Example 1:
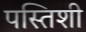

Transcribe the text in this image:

पस्तिशी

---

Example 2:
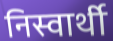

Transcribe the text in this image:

निस्वार्थी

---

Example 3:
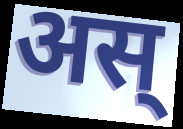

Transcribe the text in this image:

अस्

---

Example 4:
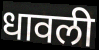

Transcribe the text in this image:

धावली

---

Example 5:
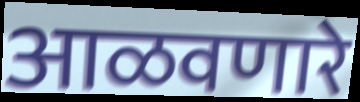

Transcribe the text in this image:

आळवणारे